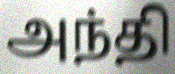
அந்தி